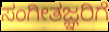
ಸಂಗೀತಜ್ಞರಿಗೆ